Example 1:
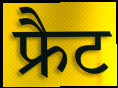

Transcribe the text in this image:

फ्रैट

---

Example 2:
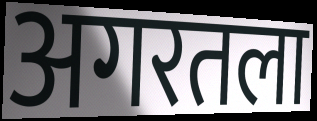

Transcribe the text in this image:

अगरतला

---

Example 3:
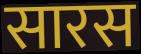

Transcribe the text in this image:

सारस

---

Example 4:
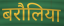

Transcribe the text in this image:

बरौलिया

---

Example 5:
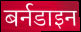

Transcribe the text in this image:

बर्नडाइन